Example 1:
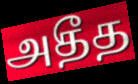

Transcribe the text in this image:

அதீத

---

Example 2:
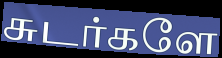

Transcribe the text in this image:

சுடர்களே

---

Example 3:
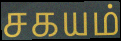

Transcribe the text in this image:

சகயம்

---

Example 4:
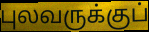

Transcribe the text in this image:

புலவருக்குப்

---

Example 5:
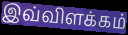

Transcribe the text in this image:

இவ்விளக்கம்